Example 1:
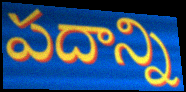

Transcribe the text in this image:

పదాన్ని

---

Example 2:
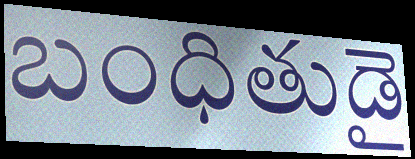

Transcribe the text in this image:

బంధితుడై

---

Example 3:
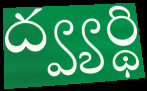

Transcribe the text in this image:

ద్వ్యర్థి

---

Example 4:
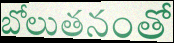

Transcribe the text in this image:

బోలుతనంతో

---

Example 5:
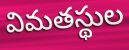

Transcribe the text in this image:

విమతస్థుల